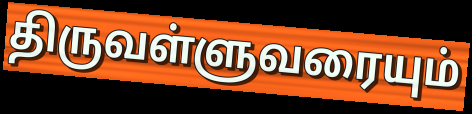
திருவள்ளுவரையும்